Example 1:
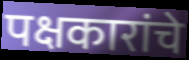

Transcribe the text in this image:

पक्षकारांचे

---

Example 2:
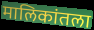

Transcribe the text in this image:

मालिकांतला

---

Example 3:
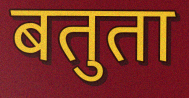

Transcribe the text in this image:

बतुता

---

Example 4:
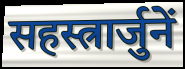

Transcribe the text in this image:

सहस्त्रार्जुनें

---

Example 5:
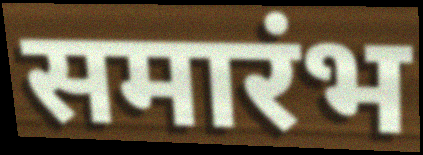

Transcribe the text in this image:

समारंभ